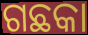
ଗଛକା